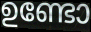
ഉണ്ടോ